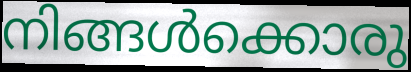
നിങ്ങൾക്കൊരു